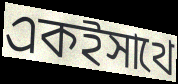
একইসাথে